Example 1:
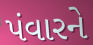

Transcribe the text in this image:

પંવારને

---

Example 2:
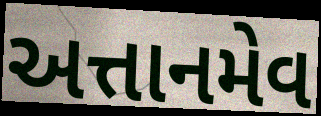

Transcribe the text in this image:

અત્તાનમેવ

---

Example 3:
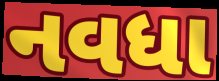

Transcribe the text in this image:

નવધા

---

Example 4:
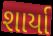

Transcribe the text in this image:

શાર્યા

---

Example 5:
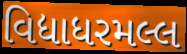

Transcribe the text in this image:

વિદ્યાધરમલ્લ